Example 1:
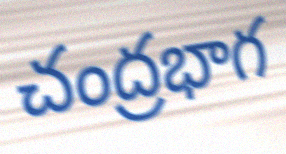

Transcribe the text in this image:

చంద్రభాగ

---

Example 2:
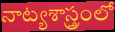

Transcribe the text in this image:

నాట్యశాస్త్రంలో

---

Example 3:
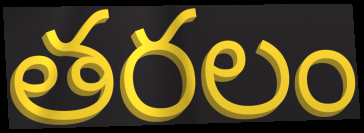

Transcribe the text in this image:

తరలం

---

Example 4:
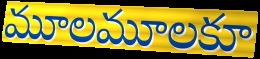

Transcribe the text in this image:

మూలమూలకూ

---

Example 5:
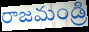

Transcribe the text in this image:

రాజమండ్రి